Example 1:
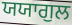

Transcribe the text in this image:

ਯਯਾਗੁਲ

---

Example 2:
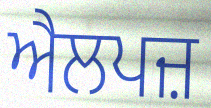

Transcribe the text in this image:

ਐਲਪਜ਼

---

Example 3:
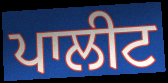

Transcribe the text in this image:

ਪਾਲੀਟ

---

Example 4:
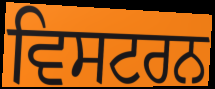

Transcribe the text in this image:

ਵਿਸਟਰਨ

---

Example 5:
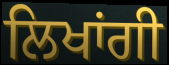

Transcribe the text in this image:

ਲਿਖਾਂਗੀ